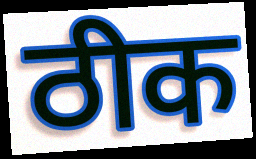
ठीक